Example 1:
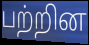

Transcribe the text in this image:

பற்றின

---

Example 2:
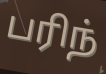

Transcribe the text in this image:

பரிந்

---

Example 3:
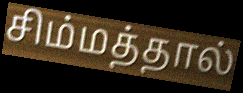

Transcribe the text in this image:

சிம்மத்தால்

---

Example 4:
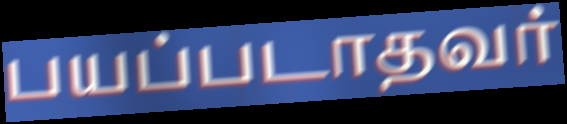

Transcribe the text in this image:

பயப்படாதவர்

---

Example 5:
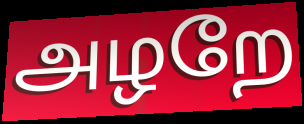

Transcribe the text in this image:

அழறே